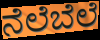
ನೆಲೆಬೆಲೆ